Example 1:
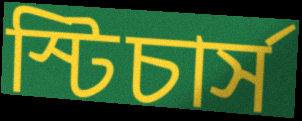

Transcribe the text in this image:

স্টিচার্স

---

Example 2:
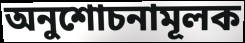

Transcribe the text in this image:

অনুশোচনামূলক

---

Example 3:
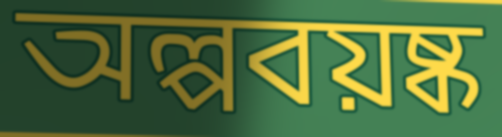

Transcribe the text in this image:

অল্পবয়ষ্ক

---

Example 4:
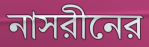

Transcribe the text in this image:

নাসরীনের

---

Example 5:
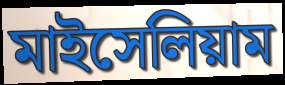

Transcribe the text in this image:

মাইসেলিয়াম